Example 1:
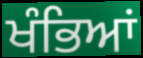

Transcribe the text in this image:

ਖੰਭਿਆਂ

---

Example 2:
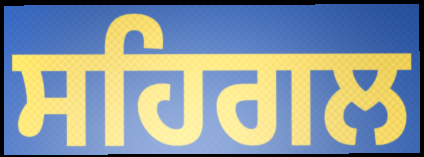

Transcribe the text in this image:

ਸਹਿਗਲ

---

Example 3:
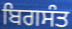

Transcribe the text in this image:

ਬਿਗਸੰਤ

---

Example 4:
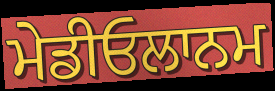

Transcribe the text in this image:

ਮੇਡੀਓਲਾਨਮ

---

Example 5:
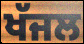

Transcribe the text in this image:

ਖੱਜਲ